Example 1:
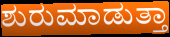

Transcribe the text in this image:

ಶುರುಮಾಡುತ್ತಾ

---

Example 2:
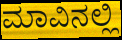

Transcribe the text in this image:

ಮಾವಿನಲ್ಲಿ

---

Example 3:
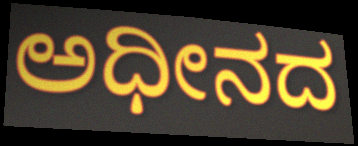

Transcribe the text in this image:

ಅಧೀನದ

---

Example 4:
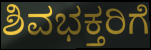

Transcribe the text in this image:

ಶಿವಭಕ್ತರಿಗೆ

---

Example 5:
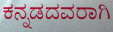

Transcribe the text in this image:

ಕನ್ನಡದವರಾಗಿ